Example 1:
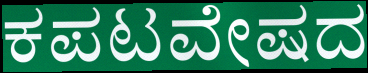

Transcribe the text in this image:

ಕಪಟವೇಷದ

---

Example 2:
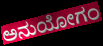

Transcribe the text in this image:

ಅನುಯೋಗಂ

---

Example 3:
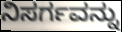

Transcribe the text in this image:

ನಿಸರ್ಗವನ್ನು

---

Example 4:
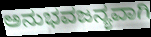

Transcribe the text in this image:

ಅನುಭವಜನ್ಯವಾಗಿ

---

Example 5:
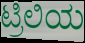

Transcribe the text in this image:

ಟ್ರಿಲಿಯ